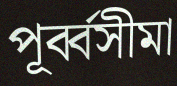
পূর্ব্বসীমা